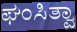
ಘಂಸಿತ್ವಾ